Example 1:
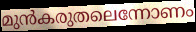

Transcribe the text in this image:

മുൻകരുതലെന്നോണം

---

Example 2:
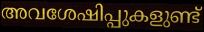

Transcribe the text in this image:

അവശേഷിപ്പുകളുണ്ട്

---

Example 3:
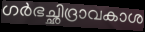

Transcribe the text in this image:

ഗർഭച്ഛിദ്രാവകാശ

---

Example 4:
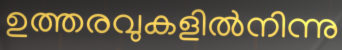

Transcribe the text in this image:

ഉത്തരവുകളിൽനിന്നു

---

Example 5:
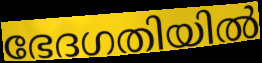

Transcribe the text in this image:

ഭേദഗതിയിൽ